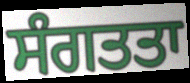
ਸੰਗਤਤਾ